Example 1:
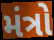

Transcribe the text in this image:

મંત્રો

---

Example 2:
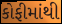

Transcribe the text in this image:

કોફીમાંથી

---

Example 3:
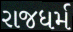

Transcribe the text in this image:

રાજધર્મ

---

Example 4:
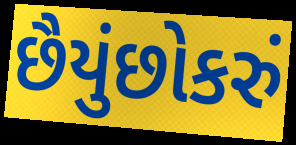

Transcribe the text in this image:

છૈયુંછોકરું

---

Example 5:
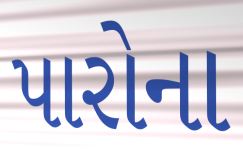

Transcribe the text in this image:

પારોના